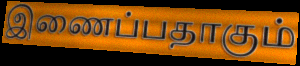
இணைப்பதாகும்